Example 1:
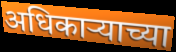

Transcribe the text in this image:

अधिकाऱ्याच्या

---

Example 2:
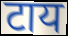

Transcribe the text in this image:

टाय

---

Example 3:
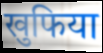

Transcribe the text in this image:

खुफिया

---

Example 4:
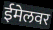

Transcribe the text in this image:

ईमेलवर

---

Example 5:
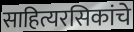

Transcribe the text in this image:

साहित्यरसिकांचे